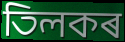
তিলকৰ